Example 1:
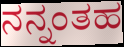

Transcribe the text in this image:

ನನ್ನಂತಹ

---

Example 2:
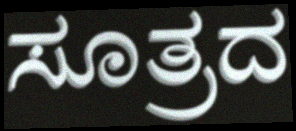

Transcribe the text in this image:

ಸೂತ್ರದ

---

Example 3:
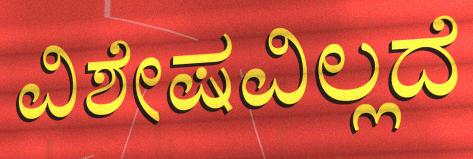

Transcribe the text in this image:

ವಿಶೇಷವಿಲ್ಲದೆ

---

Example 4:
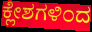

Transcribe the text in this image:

ಕ್ಲೇಶಗಳಿಂದ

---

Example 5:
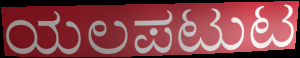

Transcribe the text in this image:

ಯಲಪಟುಟ